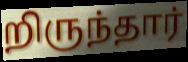
றிருந்தார்